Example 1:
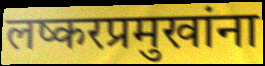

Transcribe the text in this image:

लष्करप्रमुखांना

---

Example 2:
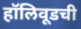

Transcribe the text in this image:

हॉलिवूडची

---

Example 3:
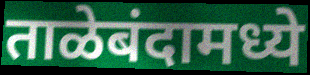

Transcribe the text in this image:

ताळेबंदामध्ये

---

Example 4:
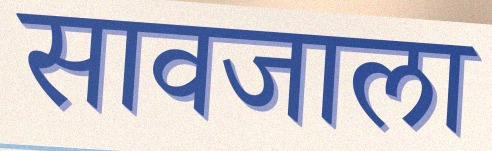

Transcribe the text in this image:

सावजाला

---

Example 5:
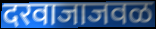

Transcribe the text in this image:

दरवाजाजवळ